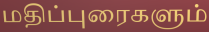
மதிப்புரைகளும்